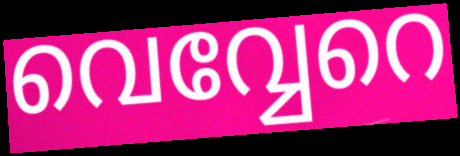
വെവ്വേറെ